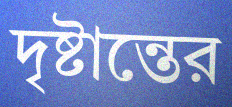
দৃষ্টান্তের